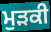
ਮੁੜਕੀ